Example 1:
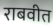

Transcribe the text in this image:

राबवीत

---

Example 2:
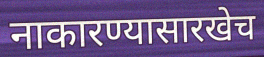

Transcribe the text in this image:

नाकारण्यासारखेच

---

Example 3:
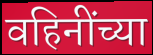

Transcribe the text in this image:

वहिनींच्या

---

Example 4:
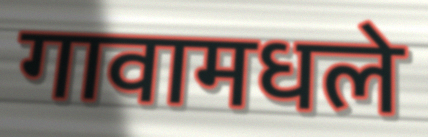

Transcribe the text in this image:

गावामधले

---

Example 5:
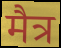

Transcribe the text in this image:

मैत्र